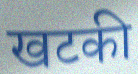
खटकी